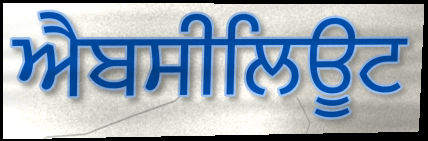
ਐਬਸੀਲਿਊਟ